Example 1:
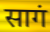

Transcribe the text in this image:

सागं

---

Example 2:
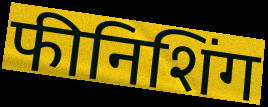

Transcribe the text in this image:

फीनिशिंग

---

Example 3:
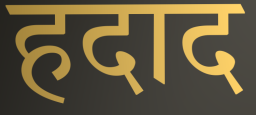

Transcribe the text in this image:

हदाद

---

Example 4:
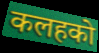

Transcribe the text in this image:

कलहको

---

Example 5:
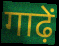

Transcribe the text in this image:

गाढ़ें